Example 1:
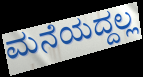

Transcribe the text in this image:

ಮನೆಯದ್ದಲ್ಲ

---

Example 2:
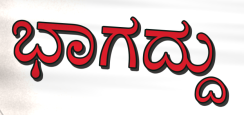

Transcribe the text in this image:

ಭಾಗದ್ದು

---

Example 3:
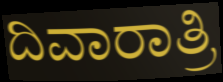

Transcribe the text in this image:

ದಿವಾರಾತ್ರಿ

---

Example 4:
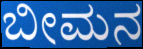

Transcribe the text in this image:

ಬೀಮನ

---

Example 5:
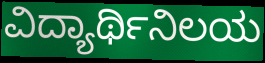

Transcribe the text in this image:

ವಿದ್ಯಾರ್ಥಿನಿಲಯ